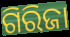
ଗିରିଜା